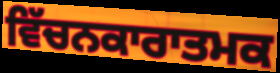
ਵਿੱਚਨਕਾਰਾਤਮਕ